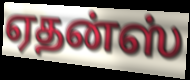
ஏதன்ஸ்